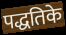
पद्धतिके